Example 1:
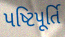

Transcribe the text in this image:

પષ્ટિપૂર્તિ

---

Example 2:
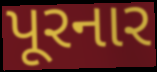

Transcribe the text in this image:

પૂરનાર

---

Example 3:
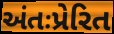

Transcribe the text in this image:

અંતઃપ્રેરિત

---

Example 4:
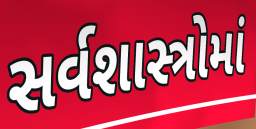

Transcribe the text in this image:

સર્વશાસ્ત્રોમાં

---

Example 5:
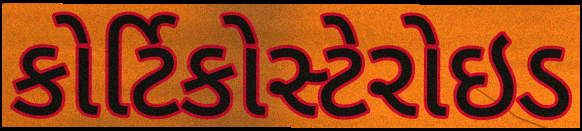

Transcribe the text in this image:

કોર્ટિકોસ્ટેરોઇડ